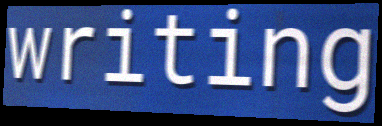
writing